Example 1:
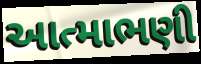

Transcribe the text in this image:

આત્માભણી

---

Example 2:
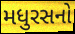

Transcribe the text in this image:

મધુરસનો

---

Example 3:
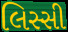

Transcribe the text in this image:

લિસ્સી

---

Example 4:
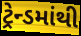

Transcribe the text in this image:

ટ્રેન્ડમાંથી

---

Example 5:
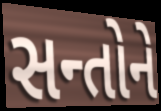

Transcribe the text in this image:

સન્તોને